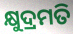
କ୍ଷୁଦ୍ରମତି